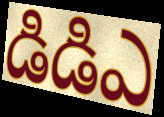
డిడిఎ